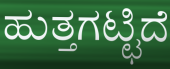
ಹುತ್ತಗಟ್ಟಿದೆ